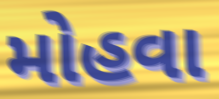
મોહવા